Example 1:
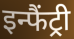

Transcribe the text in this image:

इन्फैंट्री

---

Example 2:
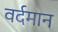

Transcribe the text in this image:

वर्दमान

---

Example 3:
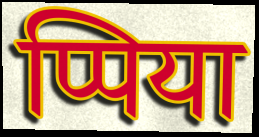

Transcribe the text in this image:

प्पिया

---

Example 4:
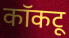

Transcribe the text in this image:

कॉकटू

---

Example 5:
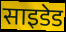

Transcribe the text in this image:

साइडेड